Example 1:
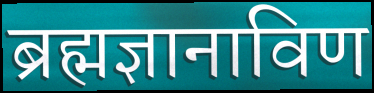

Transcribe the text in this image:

ब्रह्मज्ञानाविण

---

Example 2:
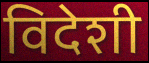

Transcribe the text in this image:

विदेशी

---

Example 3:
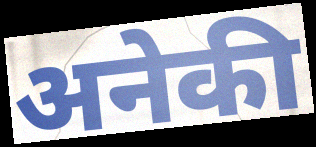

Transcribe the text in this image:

अनेकी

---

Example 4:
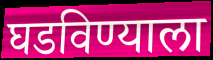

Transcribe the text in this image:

घडविण्याला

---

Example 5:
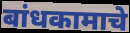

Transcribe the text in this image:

बांधकामाचे